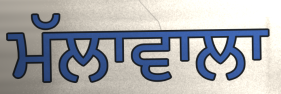
ਮੱਲਾਵਾਲਾ